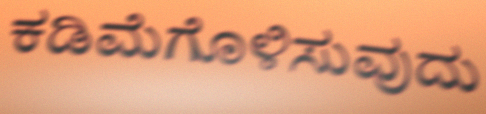
ಕಡಿಮೆಗೊಳಿಸುವುದು